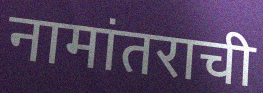
नामांतराची